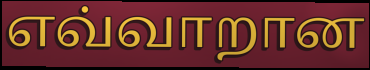
எவ்வாறான